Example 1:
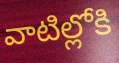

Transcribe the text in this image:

వాటిల్లోకి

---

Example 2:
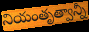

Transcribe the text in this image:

నియంతృత్వాన్నీ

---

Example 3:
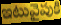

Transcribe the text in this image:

ఇటువైపుకి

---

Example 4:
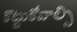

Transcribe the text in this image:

కొట్టుకోవాల్సి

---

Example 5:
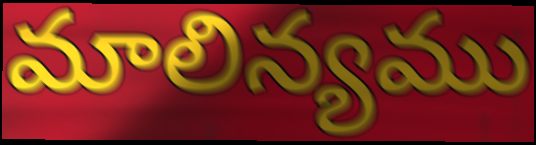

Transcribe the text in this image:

మాలిన్యము